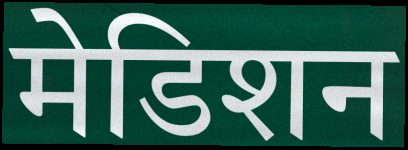
मेडिशन